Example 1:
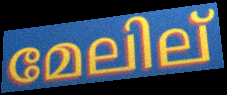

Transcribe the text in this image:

മേലില്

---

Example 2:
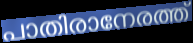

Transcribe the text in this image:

പാതിരാനേരത്ത്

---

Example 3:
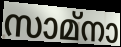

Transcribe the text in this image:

സാമ്നാ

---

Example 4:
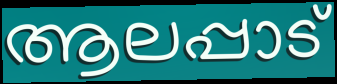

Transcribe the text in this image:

ആലപ്പാട്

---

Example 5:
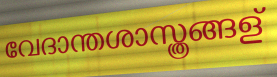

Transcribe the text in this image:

വേദാന്തശാസ്ത്രങ്ങള്